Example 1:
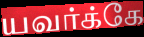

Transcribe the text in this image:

யவர்க்கே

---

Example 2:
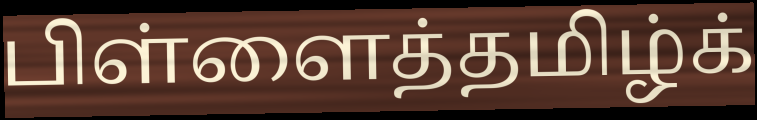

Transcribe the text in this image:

பிள்ளைத்தமிழ்க்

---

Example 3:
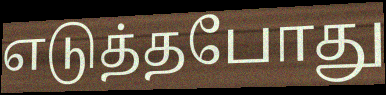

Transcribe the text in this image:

எடுத்தபோது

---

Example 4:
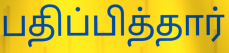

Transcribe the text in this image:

பதிப்பித்தார்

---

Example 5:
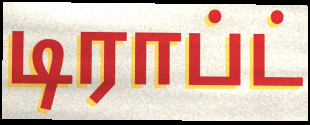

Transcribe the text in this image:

டிராப்ட்